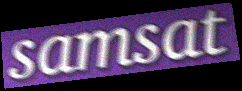
samsat